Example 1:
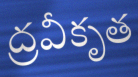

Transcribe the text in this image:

ద్రవీకృత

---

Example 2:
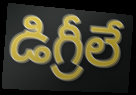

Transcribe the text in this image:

డిగ్రీలే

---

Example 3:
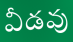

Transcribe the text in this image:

వీడవు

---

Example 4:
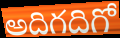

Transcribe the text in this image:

అదిగదిగో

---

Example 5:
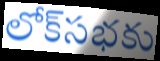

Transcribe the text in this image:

లోక్‌సభకు